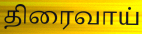
திரைவாய்